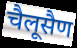
चैलूसैण